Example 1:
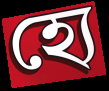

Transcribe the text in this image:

হ্যে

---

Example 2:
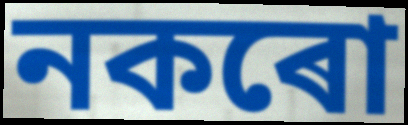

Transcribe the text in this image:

নকৰো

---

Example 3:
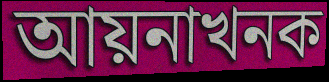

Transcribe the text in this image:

আয়নাখনক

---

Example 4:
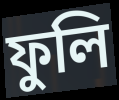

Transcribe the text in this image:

ফুলি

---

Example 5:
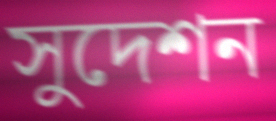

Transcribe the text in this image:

সুদেশন